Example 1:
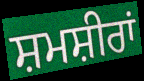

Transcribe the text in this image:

ਸ਼ਮਸ਼ੀਰਾਂ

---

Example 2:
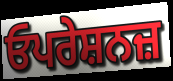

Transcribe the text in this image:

ਓਪਰੇਸ਼ਨਜ਼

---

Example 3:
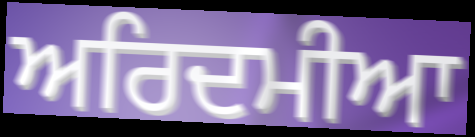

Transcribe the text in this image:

ਅਰਿਦਮੀਆ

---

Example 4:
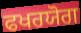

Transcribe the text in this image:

ਫਖਰਯੋਗ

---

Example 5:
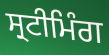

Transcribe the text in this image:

ਸ੍ਰਟੀਮਿੰਗ